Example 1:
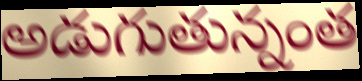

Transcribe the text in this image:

అడుగుతున్నంత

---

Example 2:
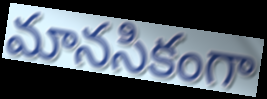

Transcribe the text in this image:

మానసికంగా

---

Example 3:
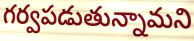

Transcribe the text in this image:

గర్వపడుతున్నామని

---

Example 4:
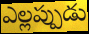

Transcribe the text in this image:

ఎల్లప్పుడు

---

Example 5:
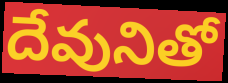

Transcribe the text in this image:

దేవునితో